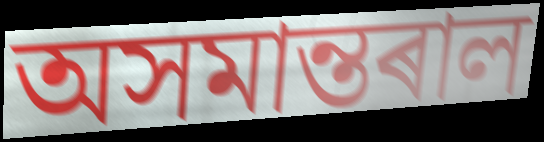
অসমান্তৰাল